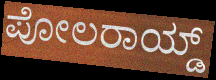
ಪೋಲರಾಯ್ಡ್